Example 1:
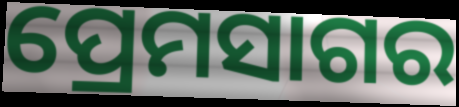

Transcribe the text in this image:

ପ୍ରେମସାଗର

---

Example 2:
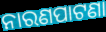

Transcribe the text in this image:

ନାରଣପାଟଣା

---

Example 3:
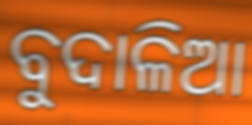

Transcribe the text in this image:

ବୁଦାଳିଆ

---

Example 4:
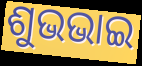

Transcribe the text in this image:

ଶୁଭଭାଇ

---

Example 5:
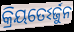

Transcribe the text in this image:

କ୍ରିୟତେଽର୍ଜୁନ